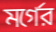
মর্গের